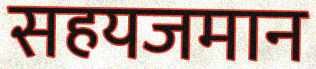
सहयजमान